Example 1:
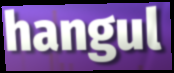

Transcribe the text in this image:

hangul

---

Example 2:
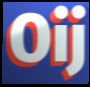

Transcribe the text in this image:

Oij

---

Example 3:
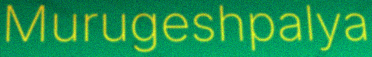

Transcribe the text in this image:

Murugeshpalya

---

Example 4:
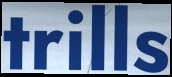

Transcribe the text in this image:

trills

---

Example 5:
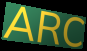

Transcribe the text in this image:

ARC